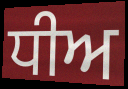
ਧੀਅ